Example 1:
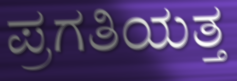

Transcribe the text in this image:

ಪ್ರಗತಿಯತ್ತ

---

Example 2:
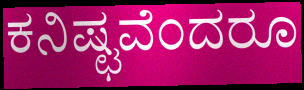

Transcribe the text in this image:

ಕನಿಷ್ಟವೆಂದರೂ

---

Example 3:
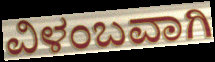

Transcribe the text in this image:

ವಿಳಂಬವಾಗಿ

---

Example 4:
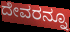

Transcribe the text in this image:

ದೇವರನ್ನೂ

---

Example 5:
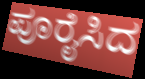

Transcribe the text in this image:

ಪೂರೈಸಿದ